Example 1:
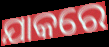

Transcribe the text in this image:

ଯାକରେ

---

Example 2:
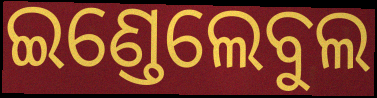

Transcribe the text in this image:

ଇଣ୍ଡେଲେବୁଲ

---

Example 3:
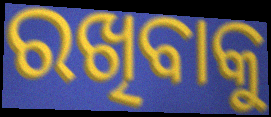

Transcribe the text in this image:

ରଖିବାକୁ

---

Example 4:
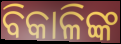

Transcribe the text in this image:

ବିକାଳିଙ୍କ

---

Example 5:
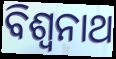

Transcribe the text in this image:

ବିଶ୍ୱନାଥ